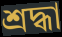
শ্ৰদ্ধা